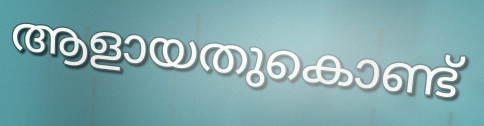
ആളായതുകൊണ്ട്